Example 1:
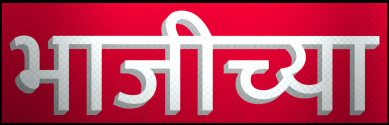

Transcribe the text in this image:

भाजीच्या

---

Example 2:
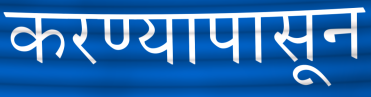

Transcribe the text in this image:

करण्यापासून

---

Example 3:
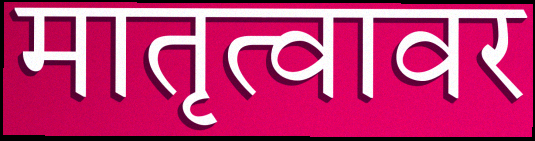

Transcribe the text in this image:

मातृत्वावर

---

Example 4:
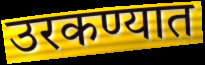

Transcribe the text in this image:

उरकण्यात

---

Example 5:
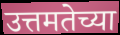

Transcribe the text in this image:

उत्तमतेच्या